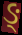
ઙ્